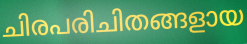
ചിരപരിചിതങ്ങളായ